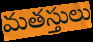
మతస్తులు